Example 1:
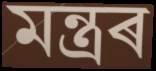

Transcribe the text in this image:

মন্ত্ৰৰ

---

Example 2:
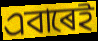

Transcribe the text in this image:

এবাৰেই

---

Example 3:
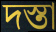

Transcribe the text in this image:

দস্তা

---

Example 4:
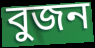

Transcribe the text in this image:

বুজন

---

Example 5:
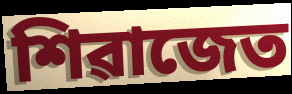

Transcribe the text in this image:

শিৱাজেত